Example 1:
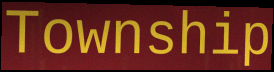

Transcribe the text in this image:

Township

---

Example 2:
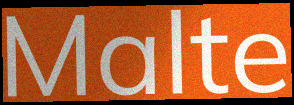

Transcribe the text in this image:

Malte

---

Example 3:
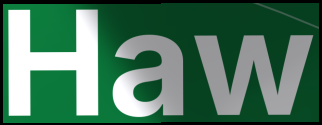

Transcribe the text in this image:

Haw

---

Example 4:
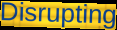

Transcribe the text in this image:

Disrupting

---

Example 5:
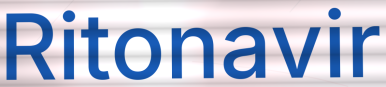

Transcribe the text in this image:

Ritonavir